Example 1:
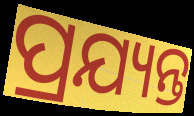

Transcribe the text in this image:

ପ୍ରଯ୍ୟନ୍ତ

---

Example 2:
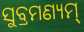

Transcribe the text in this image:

ସୁବ୍ରମଣ୍ୟମ୍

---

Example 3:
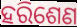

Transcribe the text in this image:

ହରିଶେଣ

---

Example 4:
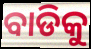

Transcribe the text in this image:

ବାଡିକୁ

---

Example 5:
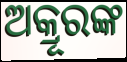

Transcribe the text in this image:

ଅକ୍ରୂରଙ୍କ